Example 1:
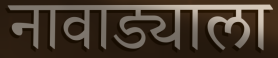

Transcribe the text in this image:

नावाड्याला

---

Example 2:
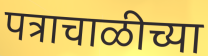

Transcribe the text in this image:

पत्राचाळीच्या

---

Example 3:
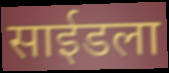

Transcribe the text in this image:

साईडला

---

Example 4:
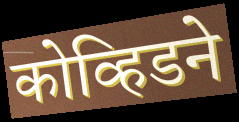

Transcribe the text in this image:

कोव्हिडने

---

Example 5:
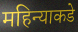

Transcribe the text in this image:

महिन्याकडे